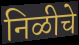
निळीचे